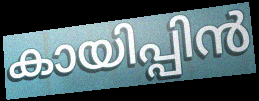
കായിപ്പിൻ